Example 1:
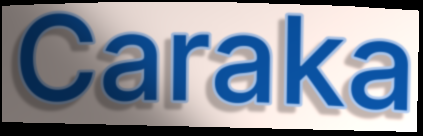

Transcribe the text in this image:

Caraka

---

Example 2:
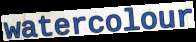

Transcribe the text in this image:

watercolour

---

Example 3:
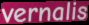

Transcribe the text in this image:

vernalis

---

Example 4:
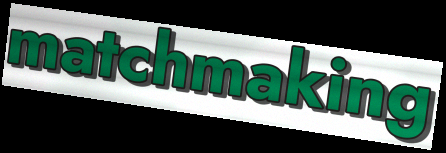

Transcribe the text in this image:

matchmaking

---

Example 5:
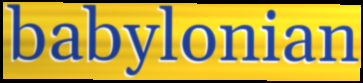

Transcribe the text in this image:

babylonian